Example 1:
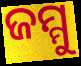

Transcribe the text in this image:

ଜମ୍ମୁ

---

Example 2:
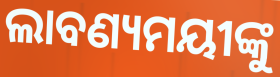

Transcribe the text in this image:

ଲାବଣ୍ୟମୟୀଙ୍କୁ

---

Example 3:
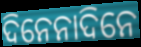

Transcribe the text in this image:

ଦିନେନାଦିନେ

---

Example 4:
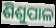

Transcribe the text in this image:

ଶିଶୁପାଳ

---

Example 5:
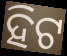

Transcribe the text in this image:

ହିଟ